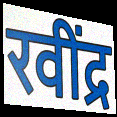
रवींद्र